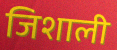
जिशाली